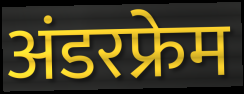
अंडरफ्रेम